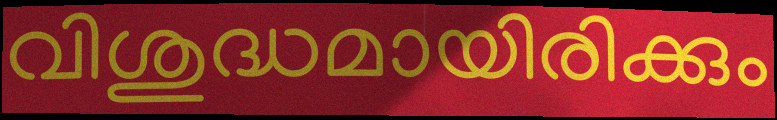
വിശുദ്ധമായിരിക്കും